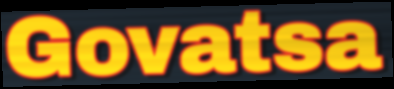
Govatsa